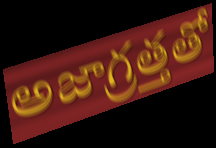
అజాగ్రత్తతో